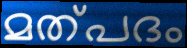
മത്പദം